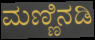
ಮಣ್ಣಿನಡಿ